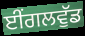
ਈਂਗਲਵੁੱਡ